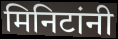
मिनिटांनी